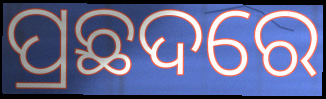
ପ୍ରଛଦରେ